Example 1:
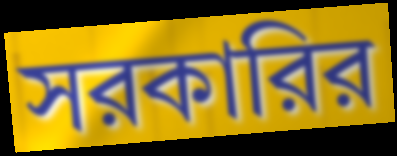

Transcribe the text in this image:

সরকারির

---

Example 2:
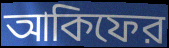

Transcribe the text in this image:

আকিফের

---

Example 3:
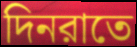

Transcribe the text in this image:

দিনরাতে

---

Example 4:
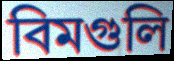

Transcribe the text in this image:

বিমগুলি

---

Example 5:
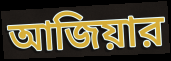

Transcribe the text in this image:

আজিয়ার